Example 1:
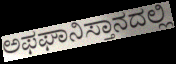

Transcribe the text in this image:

ಅಫಘಾನಿಸ್ತಾನದಲ್ಲಿ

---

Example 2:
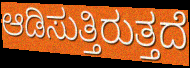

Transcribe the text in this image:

ಆಡಿಸುತ್ತಿರುತ್ತದೆ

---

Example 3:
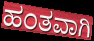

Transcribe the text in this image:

ಹಂತವಾಗಿ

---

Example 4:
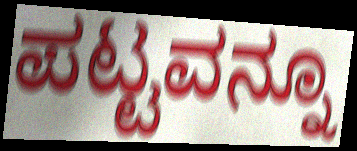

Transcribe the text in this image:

ಪಟ್ಟವನ್ನೂ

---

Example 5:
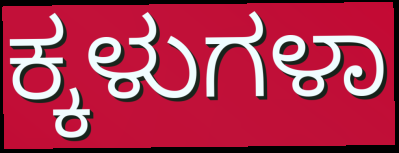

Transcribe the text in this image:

ಕ್ಕಳುಗಳಾ